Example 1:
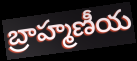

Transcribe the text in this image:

బ్రాహ్మణీయ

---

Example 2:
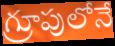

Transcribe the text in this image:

గ్రూపులోనే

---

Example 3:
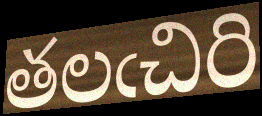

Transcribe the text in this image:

తలఁచిరి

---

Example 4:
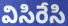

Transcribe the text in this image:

విసిరేసి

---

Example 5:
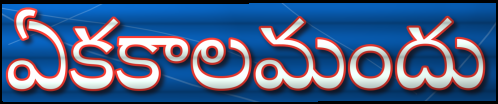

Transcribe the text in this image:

ఏకకాలమందు